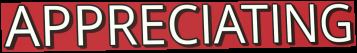
APPRECIATING